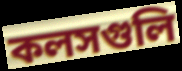
কলসগুলি